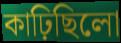
কাঢ়িছিলো